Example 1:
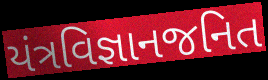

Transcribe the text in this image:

યંત્રવિજ્ઞાનજનિત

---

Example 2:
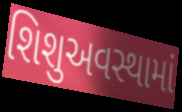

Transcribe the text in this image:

શિશુઅવસ્થામાં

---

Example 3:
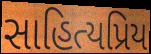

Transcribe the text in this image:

સાહિત્યપ્રિય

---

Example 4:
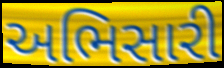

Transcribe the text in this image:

અભિસારી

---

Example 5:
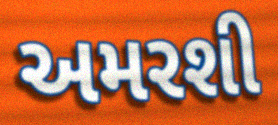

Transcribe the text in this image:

અમરશી